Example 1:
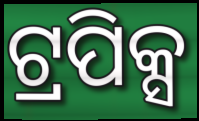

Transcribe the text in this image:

ଟ୍ରପିକ୍ସ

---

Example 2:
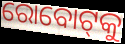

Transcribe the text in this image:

ରୋବୋଟ୍‌କୁ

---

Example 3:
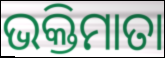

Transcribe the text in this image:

ଭକ୍ତିମାତା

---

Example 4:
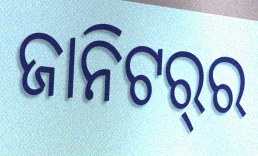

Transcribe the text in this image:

ଜାନିଟର୍‌ର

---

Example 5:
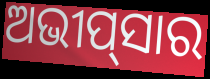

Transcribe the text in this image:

ଅଭୀପ୍‌ସାର